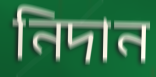
নিদান